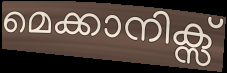
മെക്കാനിക്സ്